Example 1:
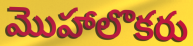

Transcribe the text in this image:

మొహాలొకరు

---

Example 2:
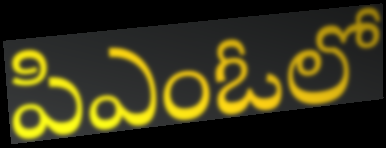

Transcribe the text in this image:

పిఎంఓలో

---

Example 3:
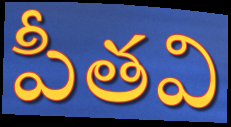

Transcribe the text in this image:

పీతవి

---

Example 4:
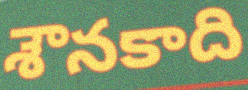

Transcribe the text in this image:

శౌనకాది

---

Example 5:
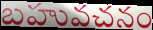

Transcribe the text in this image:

బహువచనం